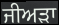
ਜੀਅੜਾ